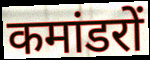
कमांडरों